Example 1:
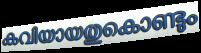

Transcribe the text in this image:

കവിയായതുകൊണ്ടും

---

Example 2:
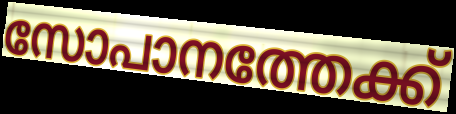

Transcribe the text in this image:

സോപാനത്തേക്ക്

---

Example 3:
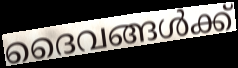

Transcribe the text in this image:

ദൈവങ്ങൾക്ക്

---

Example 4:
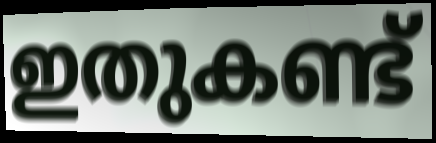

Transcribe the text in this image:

ഇതുകണ്ട്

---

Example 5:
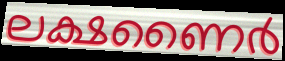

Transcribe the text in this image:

ലക്ഷണൈർ